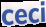
ceci